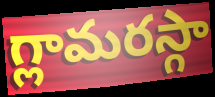
గ్లామరస్గా